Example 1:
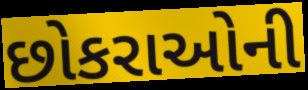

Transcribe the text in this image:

છોકરાઓની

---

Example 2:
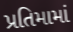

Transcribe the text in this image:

પ્રતિમામાં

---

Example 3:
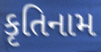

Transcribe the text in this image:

કૃતિનામ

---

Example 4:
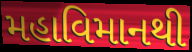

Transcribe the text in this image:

મહાવિમાનથી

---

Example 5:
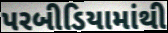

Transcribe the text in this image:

પરબીડિયામાંથી